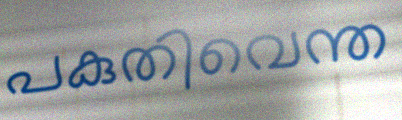
പകുതിവെന്ത